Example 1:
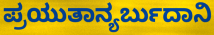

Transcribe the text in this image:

ಪ್ರಯುತಾನ್ಯರ್ಬುದಾನಿ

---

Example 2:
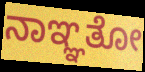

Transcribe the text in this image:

ನಾಞ್ಞತೋ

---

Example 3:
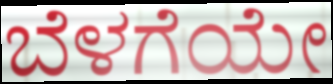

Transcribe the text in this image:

ಬೆಳಗೆಯೇ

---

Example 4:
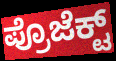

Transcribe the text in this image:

ಪ್ರೊಜೆಕ್ಟ್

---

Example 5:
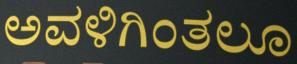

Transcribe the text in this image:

ಅವಳಿಗಿಂತಲೂ